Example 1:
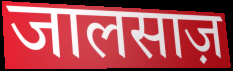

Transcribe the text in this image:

जालसाज़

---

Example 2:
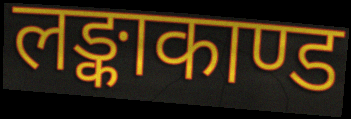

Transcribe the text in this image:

लङ्काकाण्ड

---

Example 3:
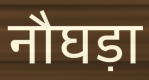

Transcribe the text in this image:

नौघड़ा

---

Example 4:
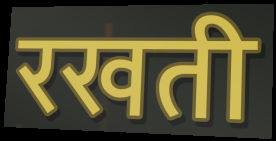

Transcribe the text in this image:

रखती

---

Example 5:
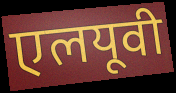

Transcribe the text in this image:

एलयूवी